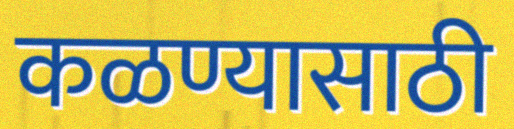
कळण्यासाठी